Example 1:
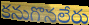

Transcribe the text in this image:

కనుగొనలేరు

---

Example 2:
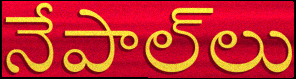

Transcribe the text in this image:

నేపాల్‌లు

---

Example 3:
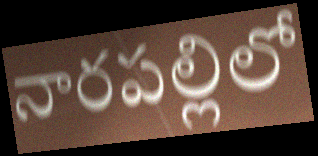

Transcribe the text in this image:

నారపల్లిలో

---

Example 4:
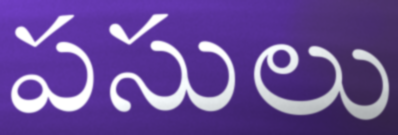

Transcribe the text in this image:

పసులు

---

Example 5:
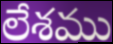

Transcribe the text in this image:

లేశము